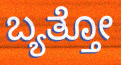
ಬ್ಯತ್ತೋ